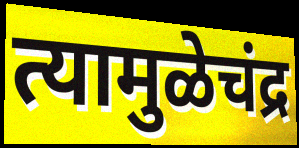
त्यामुळेचंद्र